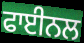
ਫਾਈਨਲ